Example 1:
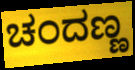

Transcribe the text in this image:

ಚಂದಣ್ಣ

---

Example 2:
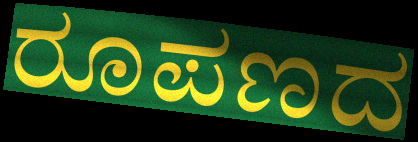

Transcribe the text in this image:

ರೂಪಣದ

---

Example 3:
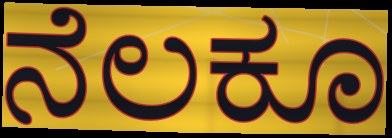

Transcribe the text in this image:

ನೆಲಕೂ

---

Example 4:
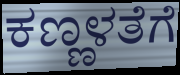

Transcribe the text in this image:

ಕಣ್ಣಳತೆಗೆ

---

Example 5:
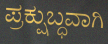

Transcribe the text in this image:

ಪ್ರಕ್ಷುಬ್ಧವಾಗಿ